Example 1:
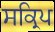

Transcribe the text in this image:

ਸਕ੍ਰਿਪ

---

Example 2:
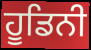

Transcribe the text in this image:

ਹੂਡਿਨੀ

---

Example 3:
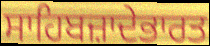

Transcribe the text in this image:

ਸਾਹਿਬਜ਼ਾਦੇਭਾਰਤ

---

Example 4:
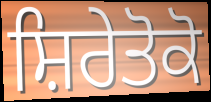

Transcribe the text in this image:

ਸ਼ਿਰੇਤੋਕੋ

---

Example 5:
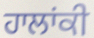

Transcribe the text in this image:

ਹਾਲਾਂਕੀ